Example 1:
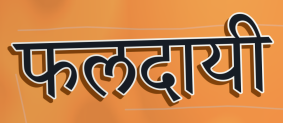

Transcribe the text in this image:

फलदायी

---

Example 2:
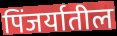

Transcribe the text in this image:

पिंजर्यातील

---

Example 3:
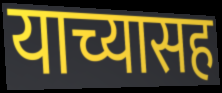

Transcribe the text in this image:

याच्यासह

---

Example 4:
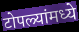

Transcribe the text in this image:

टोपल्यांमध्ये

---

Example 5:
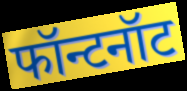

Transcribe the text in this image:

फॉन्टनॉट